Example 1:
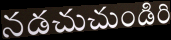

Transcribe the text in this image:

నడచుచుండిరి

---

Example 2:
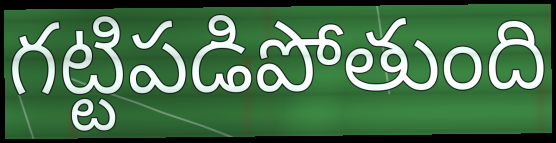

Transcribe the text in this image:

గట్టిపడిపోతుంది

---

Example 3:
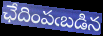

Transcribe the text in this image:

ఛేదింపఁబడిన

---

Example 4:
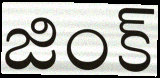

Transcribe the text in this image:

జింక్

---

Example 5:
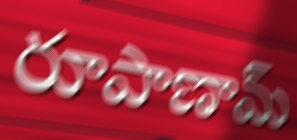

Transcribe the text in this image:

రూపాణామ్